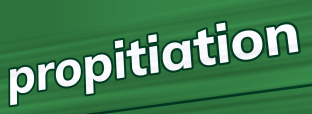
propitiation